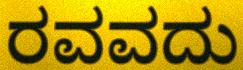
ರವವದು